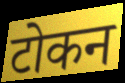
टोकन